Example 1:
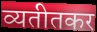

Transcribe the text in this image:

व्यतीतकर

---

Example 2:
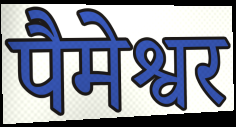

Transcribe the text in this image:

पैमेश्वर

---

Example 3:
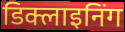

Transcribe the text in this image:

डिक्लाइनिंग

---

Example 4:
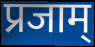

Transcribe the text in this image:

प्रजाम्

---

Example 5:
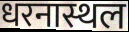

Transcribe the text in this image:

धरनास्थल